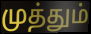
முத்தும்